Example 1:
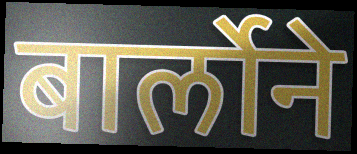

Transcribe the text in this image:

बार्लोने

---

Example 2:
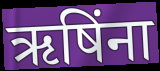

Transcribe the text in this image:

ऋषिंना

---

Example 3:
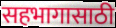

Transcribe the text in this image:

सहभागासाठी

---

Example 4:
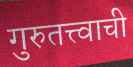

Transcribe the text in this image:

गुरुतत्त्वाची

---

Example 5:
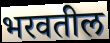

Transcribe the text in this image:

भरवतील